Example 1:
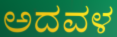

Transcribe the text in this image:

ಅದವಳ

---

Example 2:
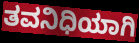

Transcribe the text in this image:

ತವನಿಧಿಯಾಗಿ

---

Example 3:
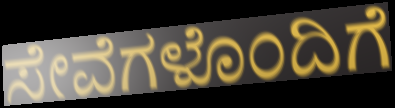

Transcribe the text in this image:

ಸೇವೆಗಳೊಂದಿಗೆ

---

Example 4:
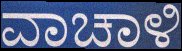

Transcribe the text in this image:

ವಾಚಾಳಿ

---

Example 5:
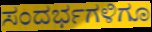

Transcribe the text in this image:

ಸಂದರ್ಭಗಳಿಗೂ